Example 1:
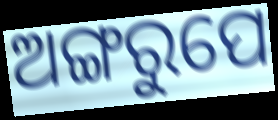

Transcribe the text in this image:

ଅଙ୍ଗରୁପେ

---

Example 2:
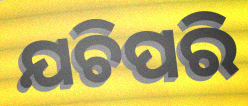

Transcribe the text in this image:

ଯଚିପରି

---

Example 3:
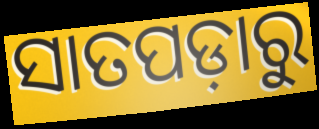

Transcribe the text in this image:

ସାତପଡ଼ାରୁ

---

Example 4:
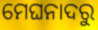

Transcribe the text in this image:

ମେଘନାଦରୁ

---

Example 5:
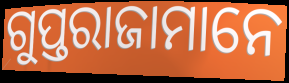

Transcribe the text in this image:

ଗୁପ୍ତରାଜାମାନେ